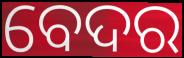
ବେଦର